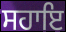
ਸਹਾਇ